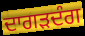
ਦਾਗੜਦੰਗ